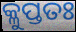
କ୍ଳୁପ୍ତତଃ